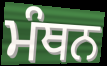
ਮੰਥਨ